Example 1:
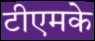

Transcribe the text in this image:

टीएमके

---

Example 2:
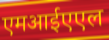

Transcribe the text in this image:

एमआईएएल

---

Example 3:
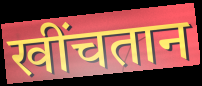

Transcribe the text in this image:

खींचतान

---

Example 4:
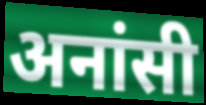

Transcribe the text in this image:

अनांसी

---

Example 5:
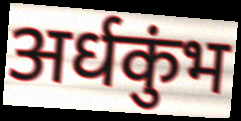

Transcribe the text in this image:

अर्धकुंभ